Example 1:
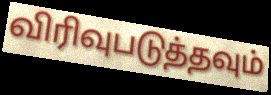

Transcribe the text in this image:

விரிவுபடுத்தவும்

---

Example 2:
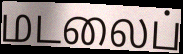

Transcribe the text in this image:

மடலைப்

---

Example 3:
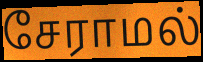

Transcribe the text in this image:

சேராமல்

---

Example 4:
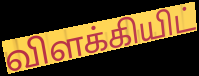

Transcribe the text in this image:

விளக்கியிட்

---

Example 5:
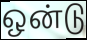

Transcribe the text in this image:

ஒன்டு